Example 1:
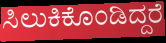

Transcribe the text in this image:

ಸಿಲುಕಿಕೊಂಡಿದ್ದರೆ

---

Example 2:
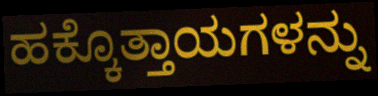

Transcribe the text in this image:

ಹಕ್ಕೊತ್ತಾಯಗಳನ್ನು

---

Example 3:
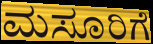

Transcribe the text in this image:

ಮಸೂರಿಗೆ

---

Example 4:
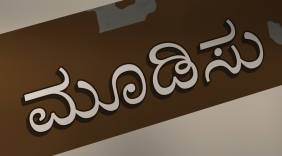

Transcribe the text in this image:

ಮೂಡಿಸು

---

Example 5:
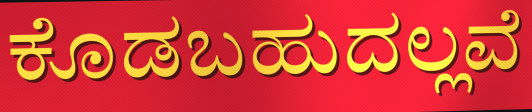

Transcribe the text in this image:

ಕೊಡಬಹುದಲ್ಲವೆ